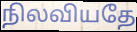
நிலவியதே